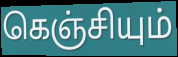
கெஞ்சியும்